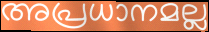
അപ്രധാനമല്ല